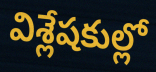
విశ్లేషకుల్లో